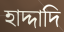
হাদ্দাদি